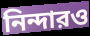
নিন্দারও